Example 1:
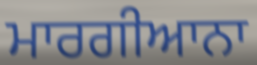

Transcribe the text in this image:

ਮਾਰਗੀਆਨਾ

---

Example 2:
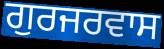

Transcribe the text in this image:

ਗੁਰਜਰਵਾਸ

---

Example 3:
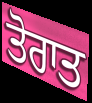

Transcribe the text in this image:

ਤੋਰਾਤ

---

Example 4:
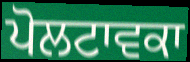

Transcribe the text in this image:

ਪੋਲਟਾਵਕਾ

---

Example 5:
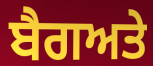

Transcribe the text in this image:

ਬੈਗਅਤੇ